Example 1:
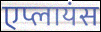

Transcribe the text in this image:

एप्लायंस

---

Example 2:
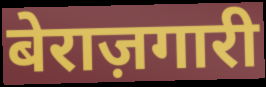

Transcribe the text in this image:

बेराज़गारी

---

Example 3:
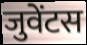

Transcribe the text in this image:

जुवेंटस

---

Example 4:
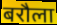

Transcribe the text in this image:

बरौला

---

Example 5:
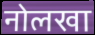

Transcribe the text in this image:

नोलखा